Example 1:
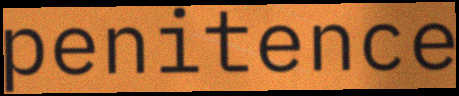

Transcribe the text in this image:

penitence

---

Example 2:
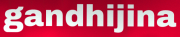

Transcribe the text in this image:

gandhijina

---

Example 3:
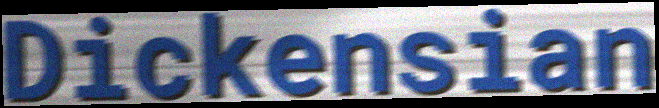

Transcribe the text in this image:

Dickensian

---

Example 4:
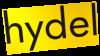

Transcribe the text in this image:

hydel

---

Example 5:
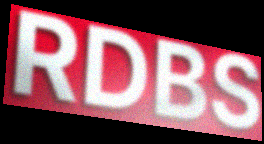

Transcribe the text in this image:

RDBS